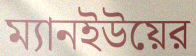
ম্যানইউয়ের